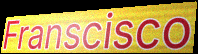
Franscisco